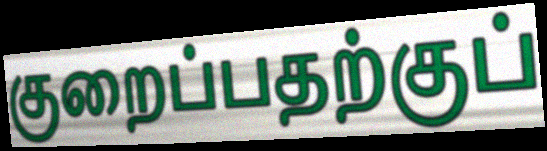
குறைப்பதற்குப்